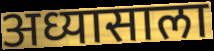
अध्यासाला